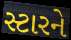
સ્ટારને